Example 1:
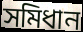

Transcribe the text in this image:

সমিধান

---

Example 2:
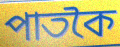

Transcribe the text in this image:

পাতকৈ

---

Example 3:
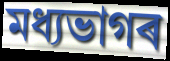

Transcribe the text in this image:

মধ্যভাগৰ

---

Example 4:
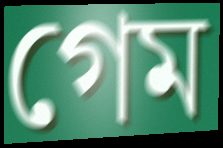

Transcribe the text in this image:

গেম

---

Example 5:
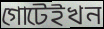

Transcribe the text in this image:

গোটেইখন